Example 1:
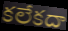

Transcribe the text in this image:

కలేకదా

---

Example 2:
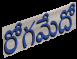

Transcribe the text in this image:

రోగమేదో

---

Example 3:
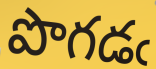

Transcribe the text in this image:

పొగడఁ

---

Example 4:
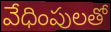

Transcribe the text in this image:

వేధింపులతో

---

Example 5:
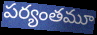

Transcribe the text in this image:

పర్యంతమూ